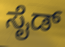
ಸೈಡ್